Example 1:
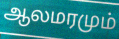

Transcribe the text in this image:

ஆலமரமும்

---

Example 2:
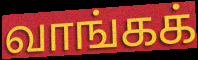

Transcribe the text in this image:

வாங்கக்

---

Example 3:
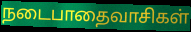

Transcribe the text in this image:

நடைபாதைவாசிகள்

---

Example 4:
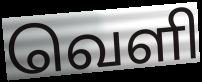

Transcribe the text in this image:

வெளி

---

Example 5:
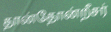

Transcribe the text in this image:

தான்தோன்றீசர்